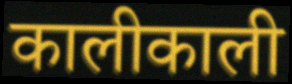
कालीकाली